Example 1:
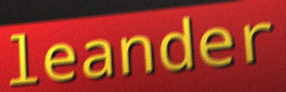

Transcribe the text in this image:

leander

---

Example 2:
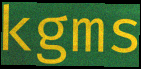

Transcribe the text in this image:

kgms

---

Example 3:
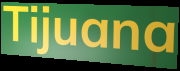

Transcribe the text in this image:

Tijuana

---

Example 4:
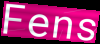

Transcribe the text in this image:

Fens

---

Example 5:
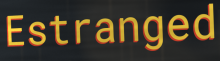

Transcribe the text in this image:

Estranged